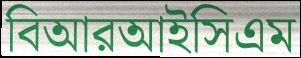
বিআরআইসিএম